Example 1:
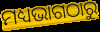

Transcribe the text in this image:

ମଧ୍ୟଭାଗଠାରୁ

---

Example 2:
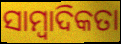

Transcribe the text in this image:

ସାମ୍ୱାଦିକତା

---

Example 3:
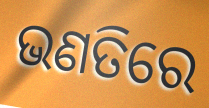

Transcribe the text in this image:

ଭଣତିରେ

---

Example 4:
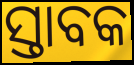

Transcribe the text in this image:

ସ୍ତାବକ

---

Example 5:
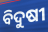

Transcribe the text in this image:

ବିଦୁଷୀ